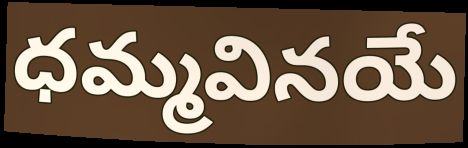
ధమ్మవినయే